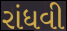
રાંધવી